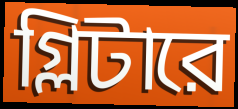
গ্লিটারে